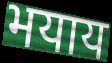
भयाय